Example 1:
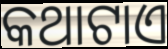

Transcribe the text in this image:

କଥାଟାଏ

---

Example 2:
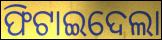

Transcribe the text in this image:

ଫିଟାଇଦେଲା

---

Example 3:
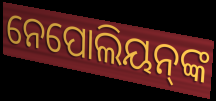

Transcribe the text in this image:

ନେପୋଲିୟନ୍‍ଙ୍କ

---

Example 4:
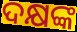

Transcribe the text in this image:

ଦକ୍ଷଙ୍କ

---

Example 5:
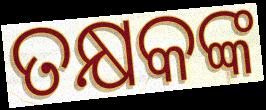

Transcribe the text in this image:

ତକ୍ଷକଙ୍କ